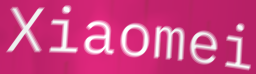
Xiaomei